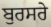
ਬੁਰਸਰੇ